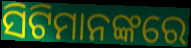
ସିଟିମାନଙ୍କରେ